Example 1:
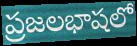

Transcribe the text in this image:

ప్రజలభాషలో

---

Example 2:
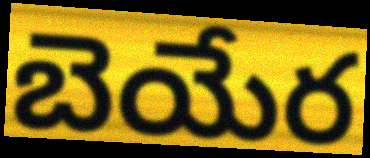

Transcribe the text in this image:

బెయేర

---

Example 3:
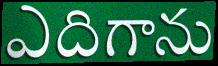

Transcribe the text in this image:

ఎదిగాను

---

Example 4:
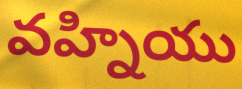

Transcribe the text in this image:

వహ్నియు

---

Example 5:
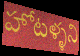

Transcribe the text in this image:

హోటళ్ళని